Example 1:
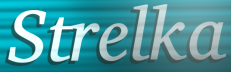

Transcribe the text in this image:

Strelka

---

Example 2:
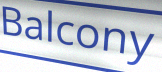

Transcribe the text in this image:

Balcony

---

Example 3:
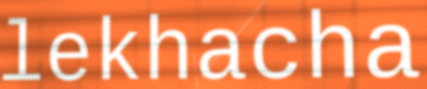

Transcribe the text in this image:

lekhacha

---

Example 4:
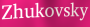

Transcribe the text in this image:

Zhukovsky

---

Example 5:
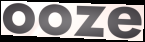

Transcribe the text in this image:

ooze